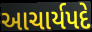
આચાર્યપદે